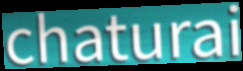
chaturai